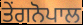
ਤੇਂਗਨੋਪਾਲ